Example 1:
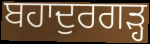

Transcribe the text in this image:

ਬਹਾਦੁਰਗੜ੍ਹ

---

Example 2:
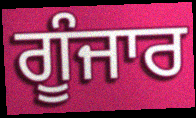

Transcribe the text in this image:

ਗੂੰਜਾਰ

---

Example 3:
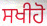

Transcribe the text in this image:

ਸਖੀਹੋ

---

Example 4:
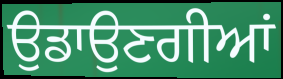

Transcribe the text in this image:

ਉਡਾਉਣਗੀਆਂ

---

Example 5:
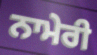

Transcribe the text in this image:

ਨਾਮੇਰੀ